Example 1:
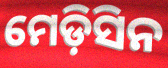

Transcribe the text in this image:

ମେଡ଼ିସିନ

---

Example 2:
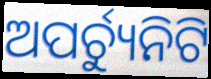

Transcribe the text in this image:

ଅପର୍ଚ୍ୟୁନିଟି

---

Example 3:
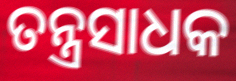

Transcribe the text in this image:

ତନ୍ତ୍ରସାଧକ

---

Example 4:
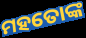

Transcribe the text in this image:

ମହତୋଙ୍କ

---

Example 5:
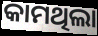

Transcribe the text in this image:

କାମଥିଲା